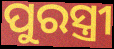
ପୁରସ୍ତ୍ରୀ